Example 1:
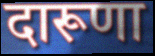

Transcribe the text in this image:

दारूणा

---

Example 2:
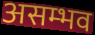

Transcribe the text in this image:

असम्‍भव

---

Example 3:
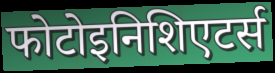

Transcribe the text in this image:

फोटोइनिशिएटर्स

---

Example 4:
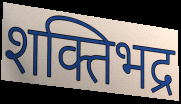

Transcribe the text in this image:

शक्तिभद्र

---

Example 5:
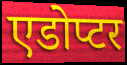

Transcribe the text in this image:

एडोप्टर